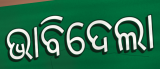
ଭାବିଦେଲା